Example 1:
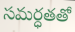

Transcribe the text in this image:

సమర్ధతతో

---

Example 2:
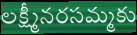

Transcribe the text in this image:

లక్ష్మీనరసమ్మకు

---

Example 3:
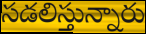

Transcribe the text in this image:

సడలిస్తున్నారు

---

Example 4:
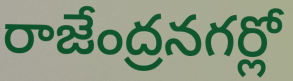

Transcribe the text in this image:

రాజేంద్రనగర్లో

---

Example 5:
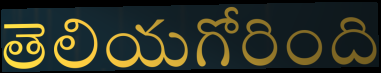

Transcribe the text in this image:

తెలియగోరింది